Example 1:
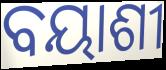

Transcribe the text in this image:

ବୟାଶୀ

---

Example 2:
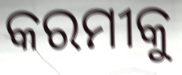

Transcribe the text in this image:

କରମୀକୁ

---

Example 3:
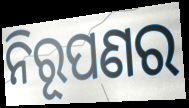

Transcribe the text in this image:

ନିରୂପଣର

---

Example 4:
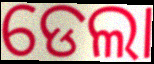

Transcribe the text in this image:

ଡେଲା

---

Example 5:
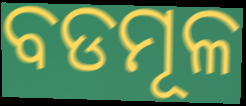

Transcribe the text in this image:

ବଡମୂଳ